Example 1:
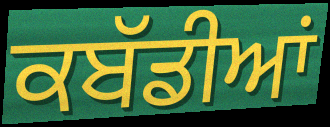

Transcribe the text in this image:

ਕਬੱਡੀਆਂ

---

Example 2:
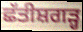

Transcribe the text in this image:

ਛੱਤੀਸ਼ਗੜ੍ਹ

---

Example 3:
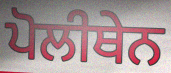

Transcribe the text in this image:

ਪੋਲੀਥੇਨ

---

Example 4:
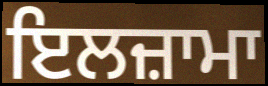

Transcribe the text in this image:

ਇਲਜ਼ਾਮਾ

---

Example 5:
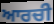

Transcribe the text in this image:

ਆਰਚੀ